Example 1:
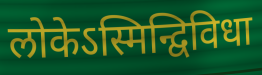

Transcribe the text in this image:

लोकेऽस्मिन्द्विविधा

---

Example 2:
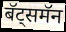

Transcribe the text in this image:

बॅट्समॅन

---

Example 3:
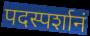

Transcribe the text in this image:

पदस्पर्शानं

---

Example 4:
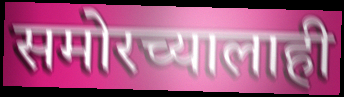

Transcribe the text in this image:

समोरच्यालाही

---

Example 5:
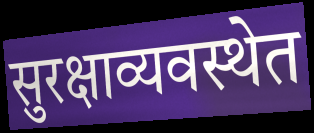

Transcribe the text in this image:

सुरक्षाव्यवस्थेत